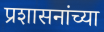
प्रशासनांच्या